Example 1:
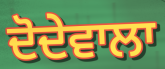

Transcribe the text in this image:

ਦੋਦੇਵਾਲਾ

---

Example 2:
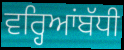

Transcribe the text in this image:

ਵਰ੍ਹਿਆਂਬੱਧੀ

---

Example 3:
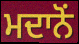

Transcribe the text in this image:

ਮਦਾਨੋਂ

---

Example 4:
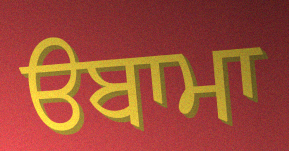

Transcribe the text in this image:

ੳਬਾਮਾ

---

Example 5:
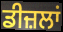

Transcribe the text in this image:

ਡੀਜ਼ਲਾਂ